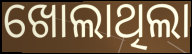
ଖୋଲାଥିଲା